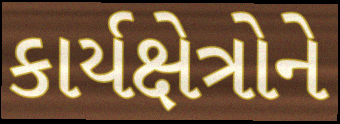
કાર્યક્ષેત્રોને